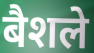
बैशले